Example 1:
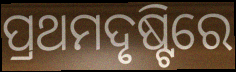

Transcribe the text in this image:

ପ୍ରଥମଦୃଷ୍ଟିରେ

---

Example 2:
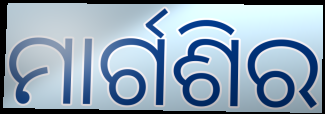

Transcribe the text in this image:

ମାର୍ଗଶିର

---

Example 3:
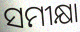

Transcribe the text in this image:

ସମୀକ୍ଷା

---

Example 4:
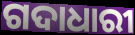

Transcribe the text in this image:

ଗଦାଧାରୀ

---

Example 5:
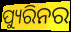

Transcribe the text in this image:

ପ୍ୟୁରିନର